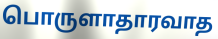
பொருளாதாரவாத